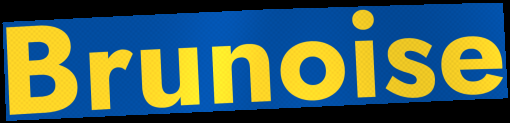
Brunoise